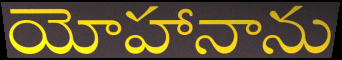
యోహానాను